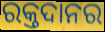
ରକ୍ତଦାନର